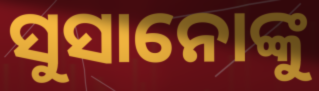
ସୁସାନୋଙ୍କୁ